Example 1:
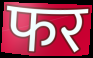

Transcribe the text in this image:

फर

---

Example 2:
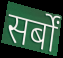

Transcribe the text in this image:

सर्बों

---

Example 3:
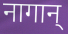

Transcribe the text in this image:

नागान्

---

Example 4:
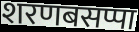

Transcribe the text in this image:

शरणबसप्पा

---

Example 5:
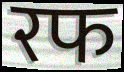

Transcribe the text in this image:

रफ